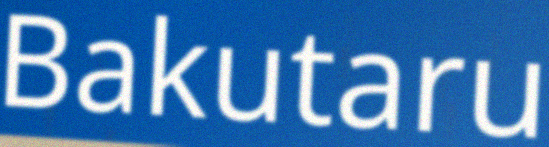
Bakutaru